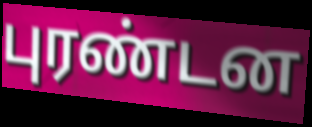
புரண்டன